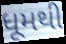
ધૂમથી